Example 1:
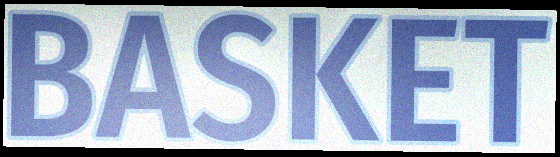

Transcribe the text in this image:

BASKET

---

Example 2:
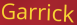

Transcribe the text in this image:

Garrick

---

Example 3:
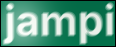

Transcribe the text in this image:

jampi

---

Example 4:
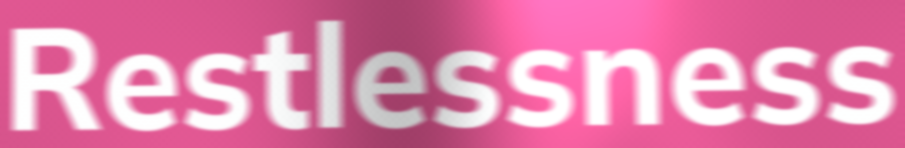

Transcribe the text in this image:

Restlessness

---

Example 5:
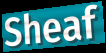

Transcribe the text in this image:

Sheaf